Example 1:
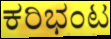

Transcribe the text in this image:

ಕರಿಭಂಟ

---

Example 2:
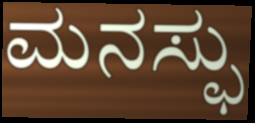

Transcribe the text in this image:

ಮನಸ್ಫು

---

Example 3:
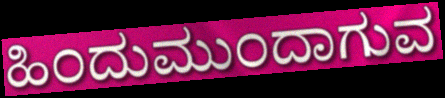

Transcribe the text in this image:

ಹಿಂದುಮುಂದಾಗುವ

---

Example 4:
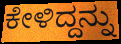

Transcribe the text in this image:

ಕೇಳಿದ್ದನ್ನು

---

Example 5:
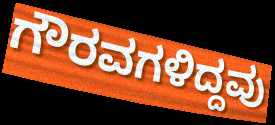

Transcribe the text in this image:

ಗೌರವಗಳಿದ್ದವು